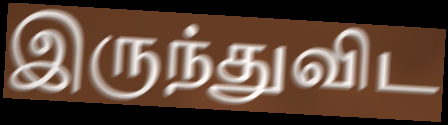
இருந்துவிட